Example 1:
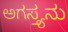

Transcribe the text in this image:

ಅಗಸ್ತ್ಯನು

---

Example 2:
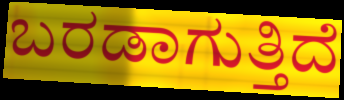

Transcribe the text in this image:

ಬರಡಾಗುತ್ತಿದೆ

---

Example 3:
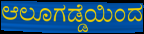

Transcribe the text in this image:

ಆಲೂಗಡ್ಡೆಯಿಂದ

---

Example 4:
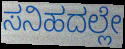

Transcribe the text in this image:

ಸನಿಹದಲ್ಲೇ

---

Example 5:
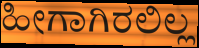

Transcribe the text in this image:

ಹೀಗಾಗಿರಲಿಲ್ಲ